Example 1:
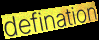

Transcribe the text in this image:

defination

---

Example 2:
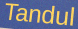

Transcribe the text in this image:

Tandul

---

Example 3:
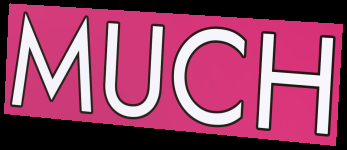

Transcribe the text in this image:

MUCH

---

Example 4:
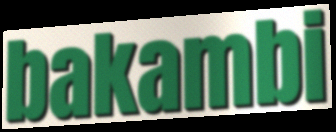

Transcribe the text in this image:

bakambi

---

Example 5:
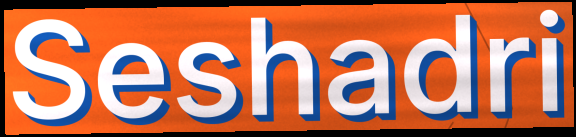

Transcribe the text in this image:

Seshadri